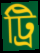
ট্রি